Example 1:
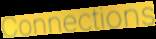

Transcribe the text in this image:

Connections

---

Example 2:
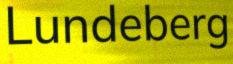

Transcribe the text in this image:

Lundeberg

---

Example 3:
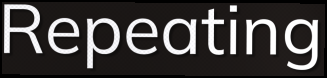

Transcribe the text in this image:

Repeating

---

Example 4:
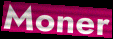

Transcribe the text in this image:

Moner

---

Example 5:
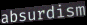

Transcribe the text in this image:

absurdism